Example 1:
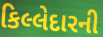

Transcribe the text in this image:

કિલ્લેદારની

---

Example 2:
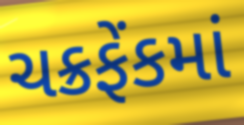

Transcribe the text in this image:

ચક્રફેંકમાં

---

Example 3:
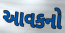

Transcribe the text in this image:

આવકનો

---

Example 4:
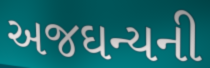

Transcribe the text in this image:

અજઘન્યની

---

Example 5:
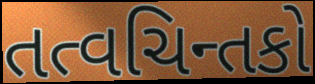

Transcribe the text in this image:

તત્વચિન્તકો